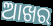
ଆଖର